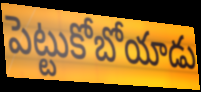
పెట్టుకోబోయాడు